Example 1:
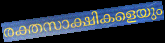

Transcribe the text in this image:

രക്തസാക്ഷികളെയും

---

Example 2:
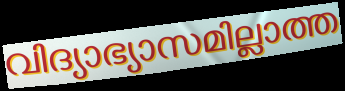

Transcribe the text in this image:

വിദ്യാഭ്യാസമില്ലാത്ത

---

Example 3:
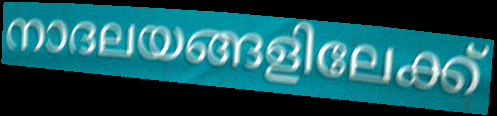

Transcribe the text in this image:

നാദലയങ്ങളിലേക്ക്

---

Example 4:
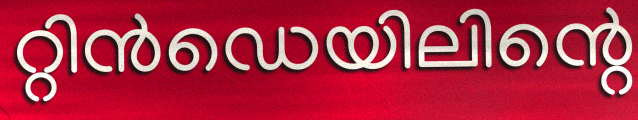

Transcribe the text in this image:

റ്റിൻഡെയിലിന്റെ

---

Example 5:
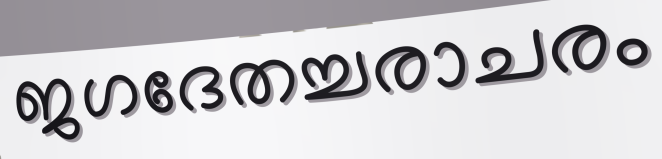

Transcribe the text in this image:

ജഗദേതച്ചരാചരം